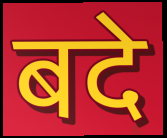
बदे